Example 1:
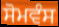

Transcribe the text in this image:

ਸੋਮਵੰਸ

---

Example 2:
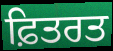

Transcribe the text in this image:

ਫ਼ਿਤਰਤ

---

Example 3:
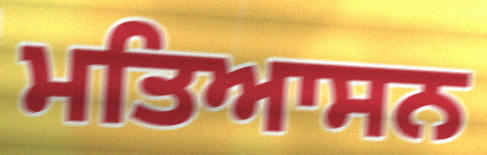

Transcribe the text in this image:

ਮਤਿਆਸਨ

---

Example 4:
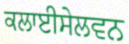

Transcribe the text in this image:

ਕਲਾਈਸੇਲਵਨ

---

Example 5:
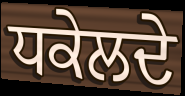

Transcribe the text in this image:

ਧਕੇਲਦੇ